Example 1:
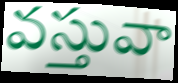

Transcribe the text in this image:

వస్తువా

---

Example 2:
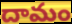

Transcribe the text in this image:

దామం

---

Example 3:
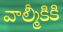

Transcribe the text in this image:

వాల్మీకికి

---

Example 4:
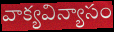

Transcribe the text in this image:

వాక్యవిన్యాసం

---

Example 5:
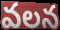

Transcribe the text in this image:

వలన